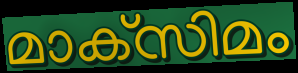
മാക്‌സിമം